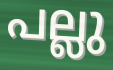
പല്ലു